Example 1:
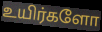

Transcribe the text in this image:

உயிர்களோ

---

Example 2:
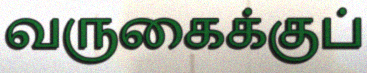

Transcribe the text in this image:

வருகைக்குப்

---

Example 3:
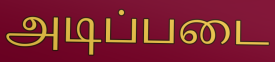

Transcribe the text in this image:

அடிப்படை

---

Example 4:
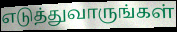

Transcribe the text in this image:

எடுத்துவாருங்கள்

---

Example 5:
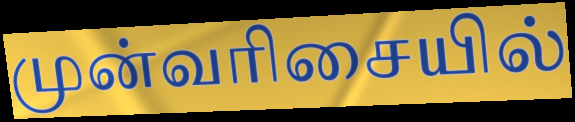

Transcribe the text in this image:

முன்வரிசையில்